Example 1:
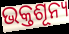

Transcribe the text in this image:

ଭକ୍ତଶୂନ୍ୟ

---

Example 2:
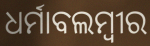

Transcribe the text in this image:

ଧର୍ମାବଲମ୍ବୀର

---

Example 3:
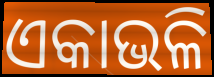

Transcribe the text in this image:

ଏକାଭଳି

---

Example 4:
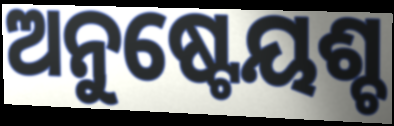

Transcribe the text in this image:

ଅନୁଷ୍ଟେୟଶ୍ଚ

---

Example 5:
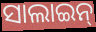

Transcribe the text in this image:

ସାଲାଇନ୍